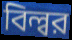
বিল্বর